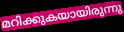
മറിക്കുകയായിരുന്നു